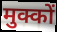
मुक्कों